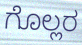
ಗೊಲ್ಲರ